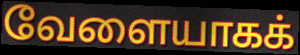
வேளையாகக்